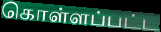
கொள்ளப்பட்ட